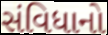
સંવિધાનો